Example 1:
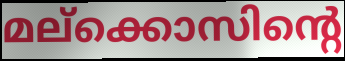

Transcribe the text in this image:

മല്ക്കൊസിന്റെ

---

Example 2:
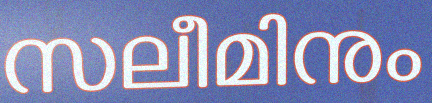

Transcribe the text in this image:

സലീമിനും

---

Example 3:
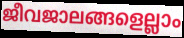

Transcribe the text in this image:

ജീവജാലങ്ങളെല്ലാം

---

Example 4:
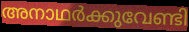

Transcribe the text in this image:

അനാഥർക്കുവേണ്ടി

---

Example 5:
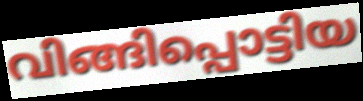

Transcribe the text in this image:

വിങ്ങിപ്പൊട്ടിയ